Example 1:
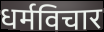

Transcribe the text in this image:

धर्मविचार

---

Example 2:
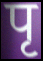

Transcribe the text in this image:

पृ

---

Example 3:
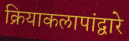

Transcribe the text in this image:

क्रियाकलापांद्वारे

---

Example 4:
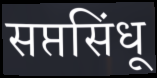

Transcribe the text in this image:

सप्तसिंधू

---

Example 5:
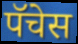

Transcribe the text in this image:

पॅचेस